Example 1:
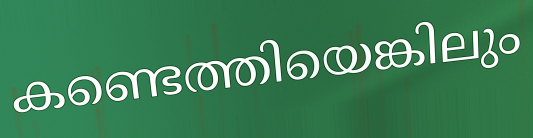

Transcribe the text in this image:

കണ്ടെത്തിയെങ്കിലും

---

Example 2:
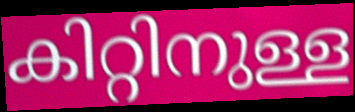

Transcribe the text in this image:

കിറ്റിനുള്ള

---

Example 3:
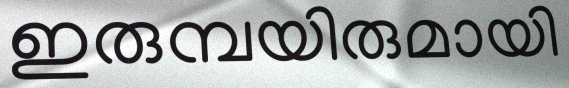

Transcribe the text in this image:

ഇരുമ്പയിരുമായി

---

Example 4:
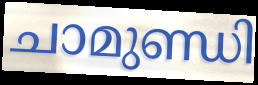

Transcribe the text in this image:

ചാമുണ്ഡി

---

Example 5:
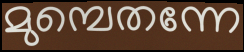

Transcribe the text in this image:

മുമ്പെതന്നേ